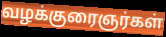
வழக்குரைஞர்கள்